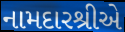
નામદારશ્રીએ